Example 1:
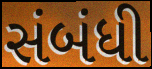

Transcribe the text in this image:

સંબંધી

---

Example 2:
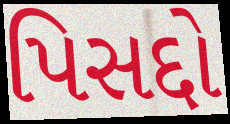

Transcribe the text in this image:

પિસદ્દો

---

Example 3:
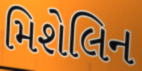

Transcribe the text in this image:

મિશેલિન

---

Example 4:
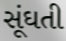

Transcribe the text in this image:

સૂંઘતી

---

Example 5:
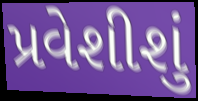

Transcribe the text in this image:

પ્રવેશીશું